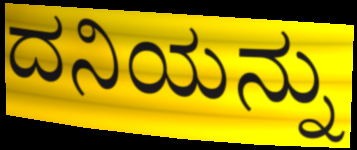
ದನಿಯನ್ನು